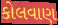
કોલવાણ